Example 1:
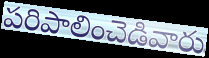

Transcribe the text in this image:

పరిపాలించెడివారు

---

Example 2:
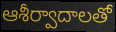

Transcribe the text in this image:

ఆశీర్వాదాలతో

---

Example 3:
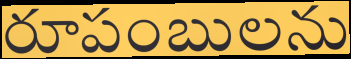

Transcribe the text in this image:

రూపంబులను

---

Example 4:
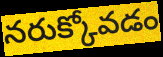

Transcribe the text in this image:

నరుక్కోవడం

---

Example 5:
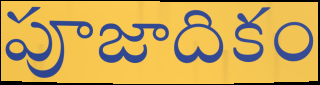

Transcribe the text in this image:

పూజాదికం